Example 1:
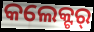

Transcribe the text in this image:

କଲେକ୍ଟର୍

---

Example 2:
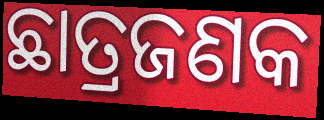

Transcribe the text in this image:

ଛାତ୍ରଜଣକ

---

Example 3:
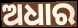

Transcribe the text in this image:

ଅଧାର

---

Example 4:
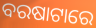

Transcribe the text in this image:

ବରଷାଟାରେ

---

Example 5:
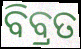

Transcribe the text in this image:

ବିବ୍ରତ